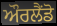
ਔਰਲੈਂਡੋ